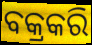
ବକ୍ରକରି